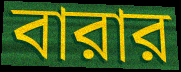
বারার